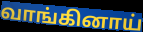
வாங்கினாய்